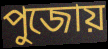
পুজোয়